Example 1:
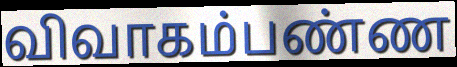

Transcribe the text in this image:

விவாகம்பண்ண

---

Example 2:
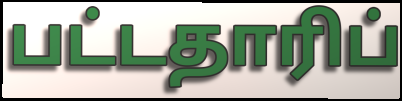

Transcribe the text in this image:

பட்டதாரிப்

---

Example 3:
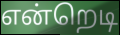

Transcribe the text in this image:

என்றெடி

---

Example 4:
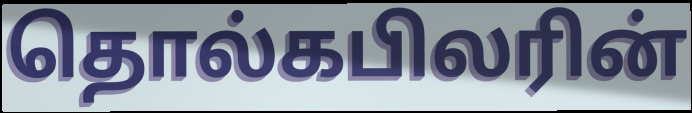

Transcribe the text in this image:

தொல்கபிலரின்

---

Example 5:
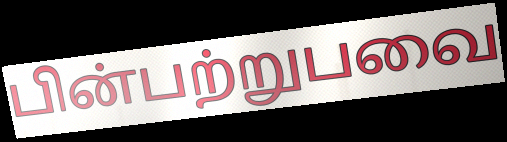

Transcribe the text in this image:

பின்பற்றுபவை